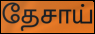
தேசாய்